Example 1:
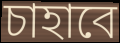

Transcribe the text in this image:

চাহাবে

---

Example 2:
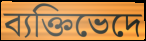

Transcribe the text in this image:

ব্যক্তিভেদে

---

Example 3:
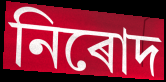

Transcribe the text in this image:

নিৰোদ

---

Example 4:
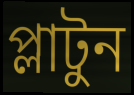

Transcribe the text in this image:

প্লাটুন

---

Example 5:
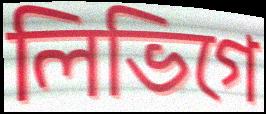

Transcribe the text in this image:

লিভিগে